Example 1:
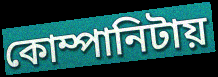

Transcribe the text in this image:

কোম্পানিটায়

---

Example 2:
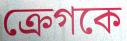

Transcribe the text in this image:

ক্রেগকে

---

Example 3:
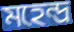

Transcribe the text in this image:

মহেন্দ্র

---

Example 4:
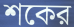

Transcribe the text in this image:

শকের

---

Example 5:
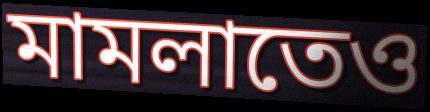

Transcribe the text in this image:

মামলাতেও